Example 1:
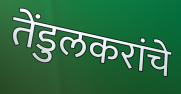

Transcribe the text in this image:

तेंडुलकरांचे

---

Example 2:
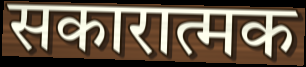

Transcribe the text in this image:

सकारात्‍मक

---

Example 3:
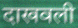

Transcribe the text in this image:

दाखवली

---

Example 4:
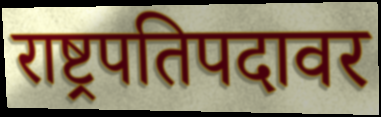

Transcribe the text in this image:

राष्ट्रपतिपदावर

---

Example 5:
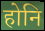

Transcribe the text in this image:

होनि